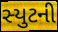
સ્યુટની